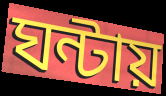
ঘন্টায়